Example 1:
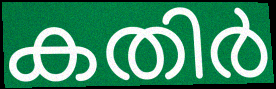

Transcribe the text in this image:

കതിർ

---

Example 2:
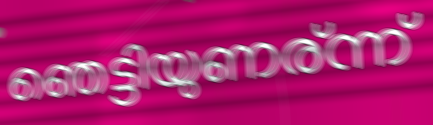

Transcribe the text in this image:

ഞെട്ടിയുണര്ന്ന്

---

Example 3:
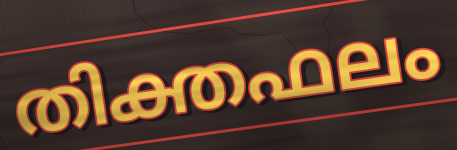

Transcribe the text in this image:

തിക്തഫലം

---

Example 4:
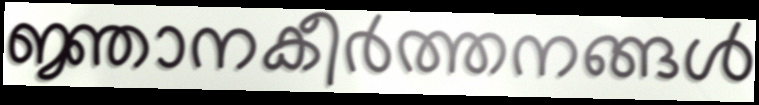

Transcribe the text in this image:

ജ്ഞാനകീർത്തനങ്ങൾ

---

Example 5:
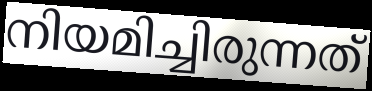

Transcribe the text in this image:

നിയമിച്ചിരുന്നത്